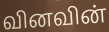
வினவின்